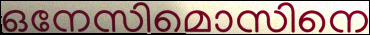
ഒനേസിമൊസിനെ